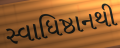
સ્વાધિષ્ઠાનથી